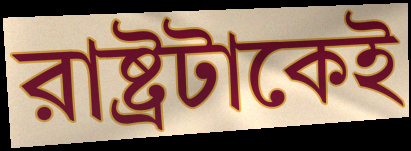
রাষ্ট্রটাকেই